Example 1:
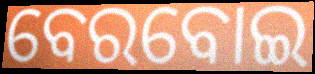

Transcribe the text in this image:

ବେରବୋଇ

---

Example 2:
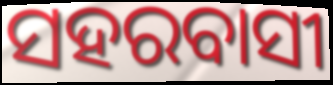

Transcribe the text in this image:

ସହରବାସୀ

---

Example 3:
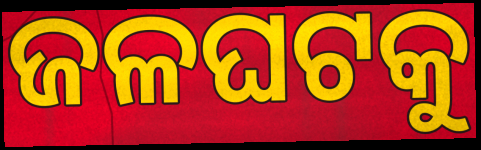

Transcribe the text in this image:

ଜଳଘଟକୁ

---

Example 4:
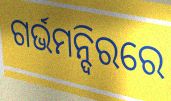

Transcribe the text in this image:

ଗର୍ଭମନ୍ଦିରରେ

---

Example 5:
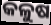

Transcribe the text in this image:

କଳୁଷ